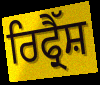
ਰਿਫ੍ਰੈੱਸ਼